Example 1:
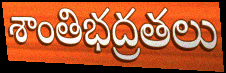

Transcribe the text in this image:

శాంతిభద్రతలు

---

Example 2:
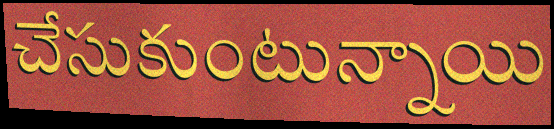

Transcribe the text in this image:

చేసుకుంటున్నాయి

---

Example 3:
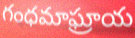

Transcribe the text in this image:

గంధమాఘ్రాయ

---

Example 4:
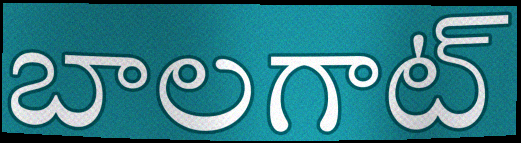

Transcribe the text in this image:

బాలగాట్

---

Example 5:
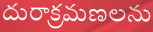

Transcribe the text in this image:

దురాక్రమణలను